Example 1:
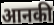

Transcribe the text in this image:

आनकी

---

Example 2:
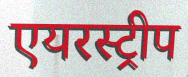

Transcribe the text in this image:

एयरस्ट्रीप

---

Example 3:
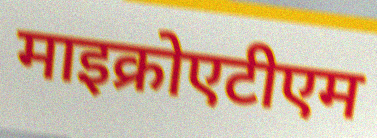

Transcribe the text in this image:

माइक्रोएटीएम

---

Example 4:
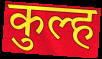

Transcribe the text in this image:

कुल्ह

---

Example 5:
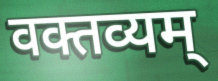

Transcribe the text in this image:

वक्तव्यम्